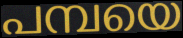
പമ്പയെ